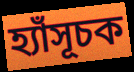
হ্যাঁসূচক